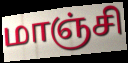
மாஞ்சி